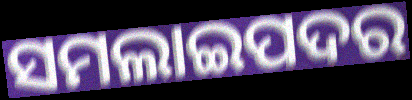
ସମଲାଇପଦର